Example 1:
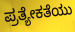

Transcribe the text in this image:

ಪ್ರತ್ಯೇಕತೆಯು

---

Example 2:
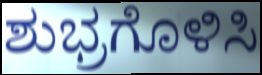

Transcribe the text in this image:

ಶುಭ್ರಗೊಳಿಸಿ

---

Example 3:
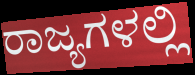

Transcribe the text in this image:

ರಾಜ್ಯಗಳಲ್ಲಿ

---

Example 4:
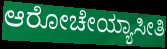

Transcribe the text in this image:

ಆರೋಚೇಯ್ಯಾಸೀತಿ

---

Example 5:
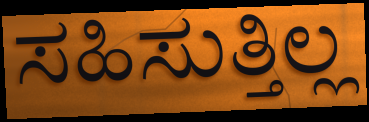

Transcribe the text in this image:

ಸಹಿಸುತ್ತಿಲ್ಲ